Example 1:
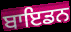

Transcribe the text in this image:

ਬਾਇਡਨ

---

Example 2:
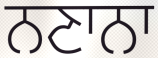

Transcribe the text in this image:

ਨਣਾਨਾ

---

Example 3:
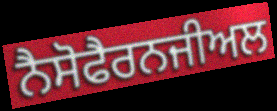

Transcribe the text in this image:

ਨੈਸੋਫੈਰਨਜੀਅਲ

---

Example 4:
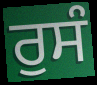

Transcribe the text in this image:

ਰੁਸੰ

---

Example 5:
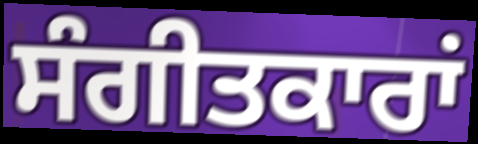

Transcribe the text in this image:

ਸੰਗੀਤਕਾਰਾਂ